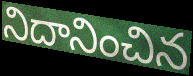
నిదానించిన